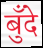
बुँदे